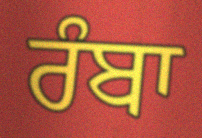
ਰੰਬਾ